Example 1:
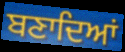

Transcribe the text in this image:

ਬਣਾਦਿਆਂ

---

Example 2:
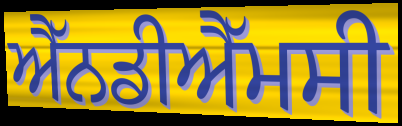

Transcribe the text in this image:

ਐੱਨਡੀਐੱਮਸੀ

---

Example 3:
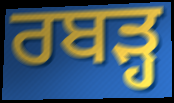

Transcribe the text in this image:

ਰਬੜ੍ਹ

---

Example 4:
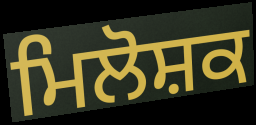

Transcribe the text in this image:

ਮਿਲੋਸ਼ਕ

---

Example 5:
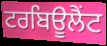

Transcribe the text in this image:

ਟਰਬਿਊਲੈਂਟ